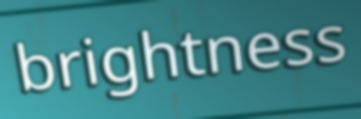
brightness